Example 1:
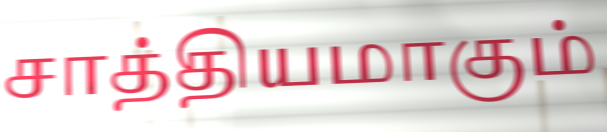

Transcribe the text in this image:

சாத்தியமாகும்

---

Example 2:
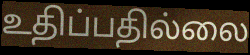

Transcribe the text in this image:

உதிப்பதில்லை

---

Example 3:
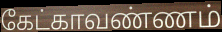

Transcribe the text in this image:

கேட்காவண்ணம்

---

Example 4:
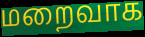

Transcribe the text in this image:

மறைவாக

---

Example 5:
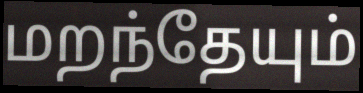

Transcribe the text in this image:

மறந்தேயும்